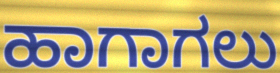
ಹಾಗಾಗಲು